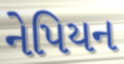
નેપિયન